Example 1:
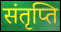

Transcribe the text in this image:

संतृप्ति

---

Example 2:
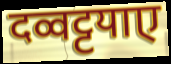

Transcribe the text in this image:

दव्वट्टयाए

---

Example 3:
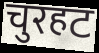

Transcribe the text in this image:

चुरहट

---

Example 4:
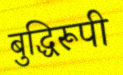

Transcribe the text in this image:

बुद्धिरूपी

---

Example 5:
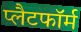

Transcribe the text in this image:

प्लैटफॉर्म